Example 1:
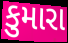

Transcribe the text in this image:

કુમારા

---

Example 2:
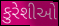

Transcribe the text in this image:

કુરેશીઓ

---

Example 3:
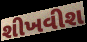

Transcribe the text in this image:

શીખવીશ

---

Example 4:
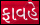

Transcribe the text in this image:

ફાવહે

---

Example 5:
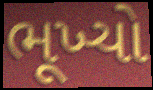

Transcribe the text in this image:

ભૂખ્યો